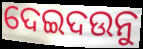
ଦେଇଦଉନୁ